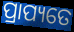
ପ୍ରାପ୍ୟତେ